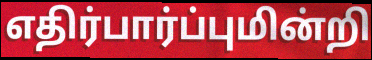
எதிர்பார்ப்புமின்றி